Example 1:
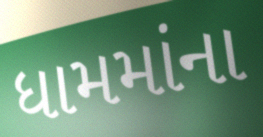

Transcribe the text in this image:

ધામમાંના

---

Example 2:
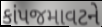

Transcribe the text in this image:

કાંપજમાવટને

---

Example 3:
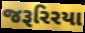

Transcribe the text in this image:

જરૂરિરયા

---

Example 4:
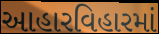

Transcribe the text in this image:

આહારવિહારમાં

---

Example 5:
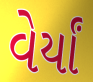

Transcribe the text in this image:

વેર્યાં